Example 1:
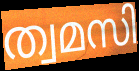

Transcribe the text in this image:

ത്വമസി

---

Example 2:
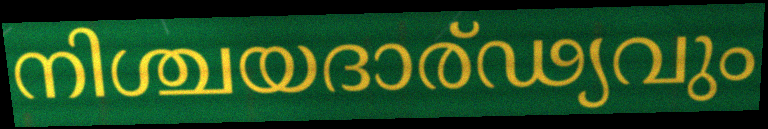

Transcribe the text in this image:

നിശ്ചയദാര്ഢ്യവും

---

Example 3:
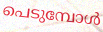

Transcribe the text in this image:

പെടുമ്പോൾ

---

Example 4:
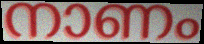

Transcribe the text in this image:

നാണം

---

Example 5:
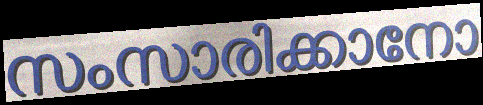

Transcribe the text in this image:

സംസാരിക്കാനോ